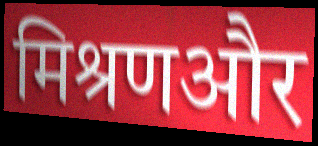
मिश्रणऔर